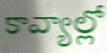
కావ్యాల్లో